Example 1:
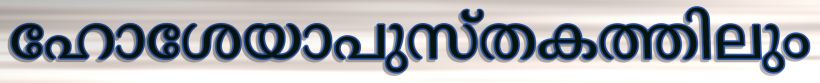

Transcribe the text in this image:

ഹോശേയാപുസ്തകത്തിലും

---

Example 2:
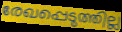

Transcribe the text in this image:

രേഖപ്പെടുത്തില്ല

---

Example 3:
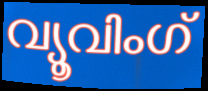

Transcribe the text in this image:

വ്യൂവിംഗ്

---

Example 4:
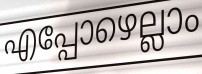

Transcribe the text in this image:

എപ്പോഴെല്ലാം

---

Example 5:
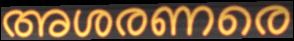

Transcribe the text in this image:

അശരണരെ